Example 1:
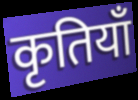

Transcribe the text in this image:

कृतियाँ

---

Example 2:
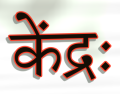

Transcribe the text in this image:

केंद्रः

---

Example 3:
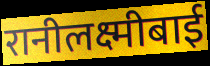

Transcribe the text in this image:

रानीलक्ष्मीबाई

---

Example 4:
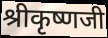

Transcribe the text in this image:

श्रीकृष्णजी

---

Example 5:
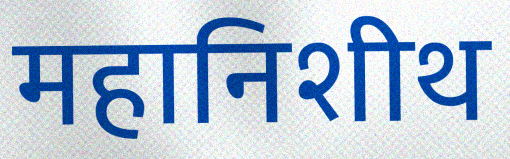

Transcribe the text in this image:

महानिशीथ